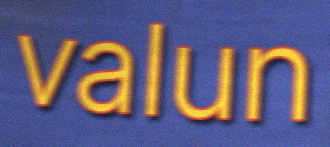
valun